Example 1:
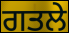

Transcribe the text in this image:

ਗਤਲੇ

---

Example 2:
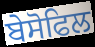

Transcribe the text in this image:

ਬੇਸੋਫਿਲ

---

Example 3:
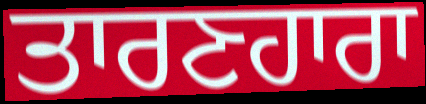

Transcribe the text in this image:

ਤਾਰਣਹਾਰਾ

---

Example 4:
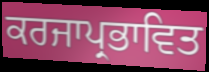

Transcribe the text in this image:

ਕਰਜਾਪ੍ਰਭਾਵਿਤ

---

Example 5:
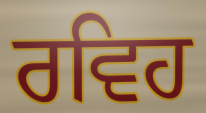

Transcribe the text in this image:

ਰਵਿਹ